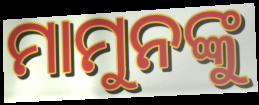
ମାମୁନଙ୍କୁ